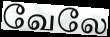
வேலே